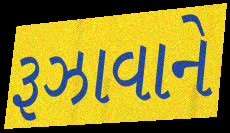
રૂઝાવાને